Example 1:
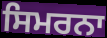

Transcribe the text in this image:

ਸਿਮਰਨਾ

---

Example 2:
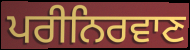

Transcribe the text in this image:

ਪਰੀਨਿਰਵਾਣ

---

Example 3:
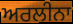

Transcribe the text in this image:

ਅਰਲੀਨਾ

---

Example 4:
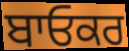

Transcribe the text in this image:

ਬਾਓਕਰ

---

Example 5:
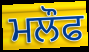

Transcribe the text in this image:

ਮਲੌਫ